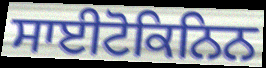
ਸਾਈਟੋਕਿਨਿਨ